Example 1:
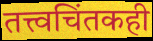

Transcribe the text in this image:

तत्त्वचिंतकही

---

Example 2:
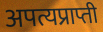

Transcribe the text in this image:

अपत्यप्राप्ती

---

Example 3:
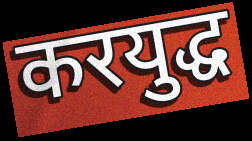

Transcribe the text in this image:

करयुद्ध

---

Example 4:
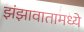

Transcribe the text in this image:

झंझावातामध्ये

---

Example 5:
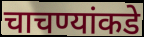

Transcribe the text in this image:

चाचण्यांकडे